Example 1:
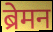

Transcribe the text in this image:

ब्रेमन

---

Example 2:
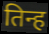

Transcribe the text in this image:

तिन्ह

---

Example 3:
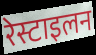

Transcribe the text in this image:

रेस्टाइलन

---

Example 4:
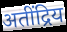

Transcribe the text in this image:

अतींद्रिय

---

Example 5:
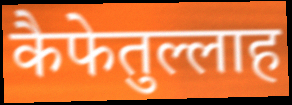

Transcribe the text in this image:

कैफेतुल्लाह